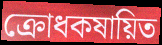
ক্রোধকষায়িত